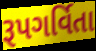
રૂપગર્વિતા